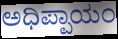
ಅಧಿಪ್ಪಾಯಂ